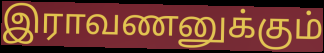
இராவணனுக்கும்